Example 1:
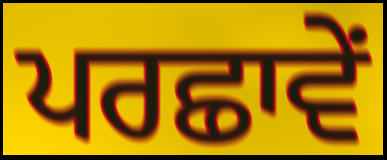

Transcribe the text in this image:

ਪਰਛਾਵੇਂ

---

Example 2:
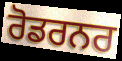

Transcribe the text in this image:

ਰੋਡਰਨਰ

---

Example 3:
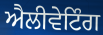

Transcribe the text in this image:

ਐਲੀਵੇਟਿੰਗ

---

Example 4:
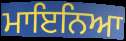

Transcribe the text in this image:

ਮਾਇਨਿਆ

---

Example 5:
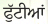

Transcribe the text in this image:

ਫੁੱਟੀਆਂ